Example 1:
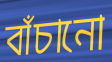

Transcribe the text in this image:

বাঁচানো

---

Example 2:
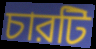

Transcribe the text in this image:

চারটি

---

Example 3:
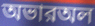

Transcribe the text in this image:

অভারঅল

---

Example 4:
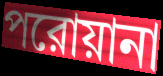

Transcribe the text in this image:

পরোয়ানা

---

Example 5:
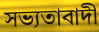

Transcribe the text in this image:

সভ্যতাবাদী